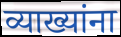
व्याख्यांना